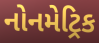
નોનમેટ્રિક